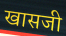
खासजी